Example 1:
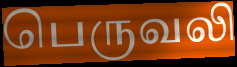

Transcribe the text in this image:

பெருவலி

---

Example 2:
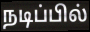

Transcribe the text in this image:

நடிப்பில்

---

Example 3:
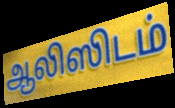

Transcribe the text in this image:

ஆலிஸிடம்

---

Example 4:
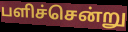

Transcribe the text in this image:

பளிச்சென்று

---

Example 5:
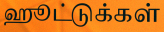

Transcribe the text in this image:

ஹூட்டுக்கள்